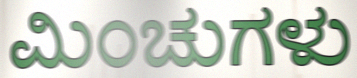
ಮಿಂಚುಗಳು